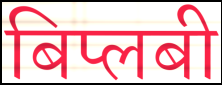
बिप्लबी